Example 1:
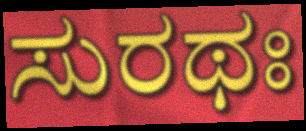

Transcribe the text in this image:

ಸುರಥಃ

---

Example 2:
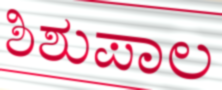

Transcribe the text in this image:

ಶಿಶುಪಾಲ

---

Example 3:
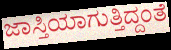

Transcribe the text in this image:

ಜಾಸ್ತಿಯಾಗುತ್ತಿದ್ದಂತೆ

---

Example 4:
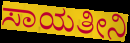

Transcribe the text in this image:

ಸಾಯತೀನಿ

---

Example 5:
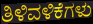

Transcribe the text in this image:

ತಿಳಿವಳಿಕೆಗಳು